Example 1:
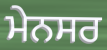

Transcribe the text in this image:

ਮੇਨਸਰ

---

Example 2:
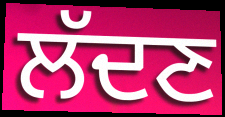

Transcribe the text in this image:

ਲੱਦਣ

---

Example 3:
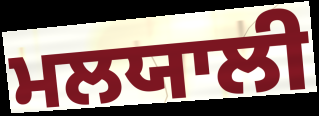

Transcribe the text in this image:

ਮਲਯਾਲੀ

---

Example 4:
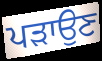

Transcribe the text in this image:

ਪੜਾਉਣ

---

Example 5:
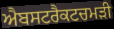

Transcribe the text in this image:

ਐਬਸਟਰੈਕਟਚਮੜੀ